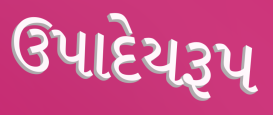
ઉપાદેયરૂપ